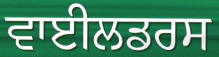
ਵਾਈਲਡਰਸ